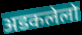
अडकलेलो